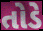
તોડે